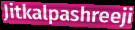
Jitkalpashreeji